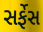
સર્ફેસ